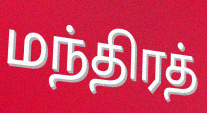
மந்திரத்